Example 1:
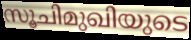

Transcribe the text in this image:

സൂചിമുഖിയുടെ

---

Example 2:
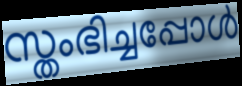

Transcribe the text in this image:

സ്തംഭിച്ചപ്പോൾ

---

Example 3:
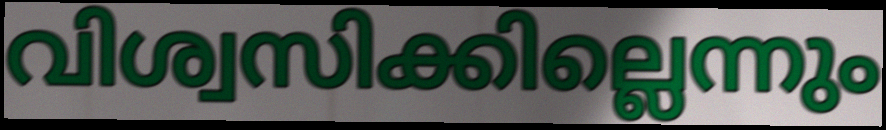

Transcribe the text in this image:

വിശ്വസിക്കില്ലെന്നും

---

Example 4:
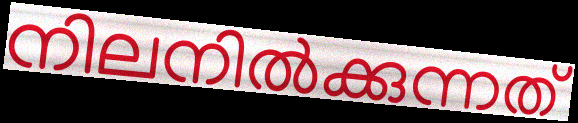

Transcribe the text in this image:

നിലനിൽക്കുന്നത്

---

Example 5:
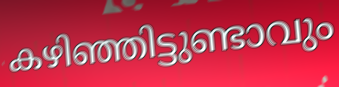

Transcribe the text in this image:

കഴിഞ്ഞിട്ടുണ്ടാവും